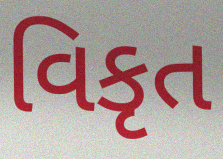
વિકૃત